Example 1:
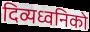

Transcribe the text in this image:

दिव्यध्वनिको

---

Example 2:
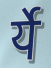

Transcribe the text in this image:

र्ये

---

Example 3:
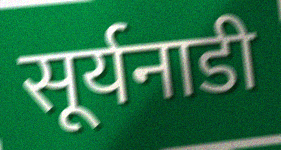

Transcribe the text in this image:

सूर्यनाडी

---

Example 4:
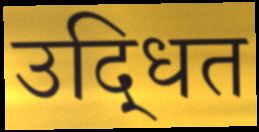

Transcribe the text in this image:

उद्धित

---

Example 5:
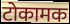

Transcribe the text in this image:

टोकामक